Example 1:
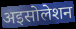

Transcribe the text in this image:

अइसोलेशन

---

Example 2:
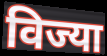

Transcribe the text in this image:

विज्या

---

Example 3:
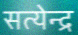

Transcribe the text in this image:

सत्येन्द्र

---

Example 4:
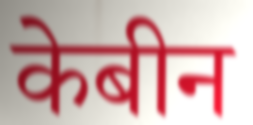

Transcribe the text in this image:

केबीन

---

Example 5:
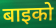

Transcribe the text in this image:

बाइको